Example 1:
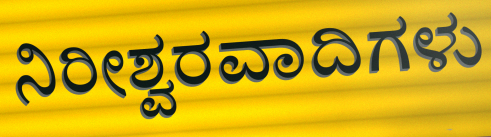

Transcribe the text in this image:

ನಿರೀಶ್ವರವಾದಿಗಳು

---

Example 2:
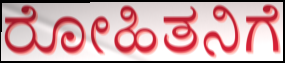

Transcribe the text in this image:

ರೋಹಿತನಿಗೆ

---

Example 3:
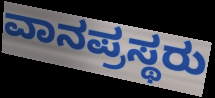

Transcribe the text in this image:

ವಾನಪ್ರಸ್ಥರು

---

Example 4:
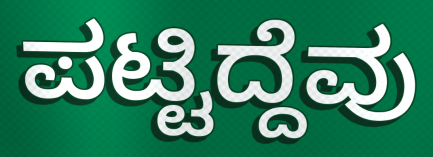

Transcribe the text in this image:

ಪಟ್ಟಿದ್ದೆವು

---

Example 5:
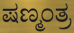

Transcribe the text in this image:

ಷಣ್ಮಂತ್ರ